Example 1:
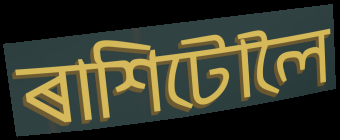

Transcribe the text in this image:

ৰাশিটোলৈ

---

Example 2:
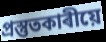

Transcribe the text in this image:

প্ৰস্তুতকাৰীয়ে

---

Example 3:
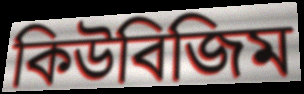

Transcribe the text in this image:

কিউবিজিম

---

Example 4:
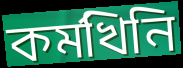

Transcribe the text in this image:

কৰ্মখিনি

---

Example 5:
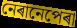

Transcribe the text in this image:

নেৰানেপেৰা